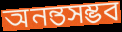
অনন্তসম্ভব